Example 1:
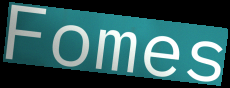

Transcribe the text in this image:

Fomes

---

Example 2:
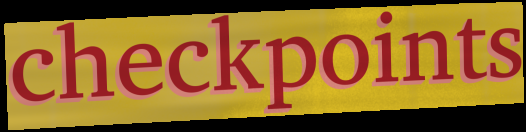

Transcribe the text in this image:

checkpoints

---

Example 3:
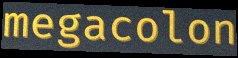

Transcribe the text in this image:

megacolon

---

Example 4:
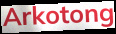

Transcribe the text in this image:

Arkotong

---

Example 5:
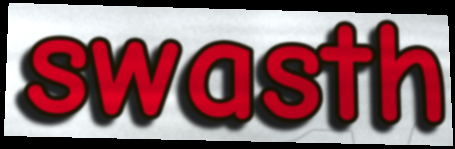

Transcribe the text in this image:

swasth